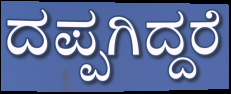
ದಪ್ಪಗಿದ್ದರೆ